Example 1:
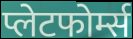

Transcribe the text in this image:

प्लेटफोर्म्स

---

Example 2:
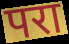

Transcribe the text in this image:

परा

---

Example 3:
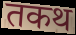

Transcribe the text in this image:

तकथ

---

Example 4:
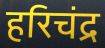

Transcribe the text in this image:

हरिचंद्र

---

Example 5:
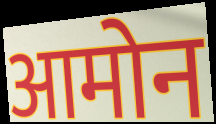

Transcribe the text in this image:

आमोन